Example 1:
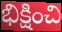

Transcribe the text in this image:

భిక్షించి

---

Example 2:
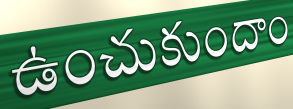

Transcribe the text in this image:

ఉంచుకుందాం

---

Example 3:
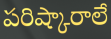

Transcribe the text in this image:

పరిష్కారాలే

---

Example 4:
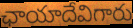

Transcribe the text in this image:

ఛాయాదేవిగారు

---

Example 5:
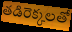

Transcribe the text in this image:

తడిరెక్కలతో